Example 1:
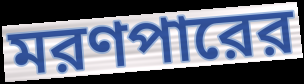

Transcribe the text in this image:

মরণপারের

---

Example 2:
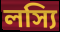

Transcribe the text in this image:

লস্যি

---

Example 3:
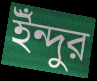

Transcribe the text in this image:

ইঁন্দুর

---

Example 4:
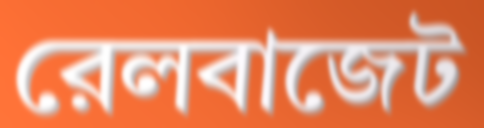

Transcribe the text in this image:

রেলবাজেট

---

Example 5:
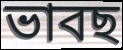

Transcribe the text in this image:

ভাবছ